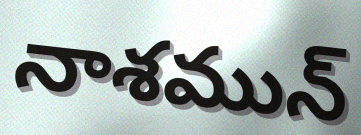
నాశమున్